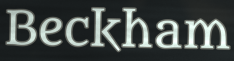
Beckham